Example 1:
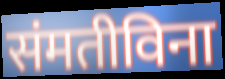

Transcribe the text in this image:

संमतीविना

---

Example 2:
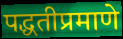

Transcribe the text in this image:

पद्धतीप्रमाणे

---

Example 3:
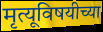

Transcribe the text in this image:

मृत्यूविषयीच्या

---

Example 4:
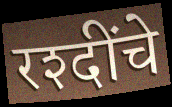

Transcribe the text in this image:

रश्दींचे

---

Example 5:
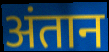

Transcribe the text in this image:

अंतान